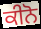
ਕੀਨੋ